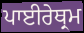
ਪਾਈਰੇਥ੍ਰਮ